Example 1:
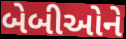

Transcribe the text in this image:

બેબીઓને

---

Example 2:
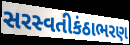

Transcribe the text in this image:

સરસ્વતીકંઠાભરણ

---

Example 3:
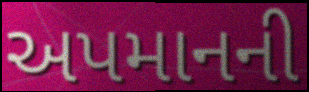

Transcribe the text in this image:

અપમાનની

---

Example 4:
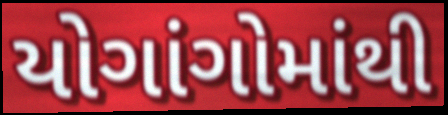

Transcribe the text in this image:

યોગાંગોમાંથી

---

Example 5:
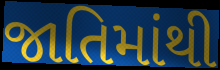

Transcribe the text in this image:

જાતિમાંથી